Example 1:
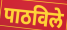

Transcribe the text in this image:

पाठविले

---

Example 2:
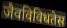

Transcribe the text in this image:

जैवविविधतेस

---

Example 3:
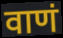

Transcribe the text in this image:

वाणं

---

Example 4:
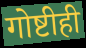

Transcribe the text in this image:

गोष्टीही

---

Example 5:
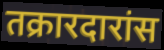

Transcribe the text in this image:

तक्रारदारांस